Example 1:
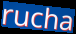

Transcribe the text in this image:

rucha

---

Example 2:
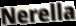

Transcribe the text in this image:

Nerella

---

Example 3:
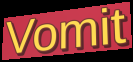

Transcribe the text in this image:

Vomit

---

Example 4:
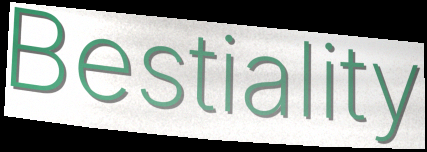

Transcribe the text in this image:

Bestiality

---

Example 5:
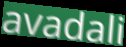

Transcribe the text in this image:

avadali